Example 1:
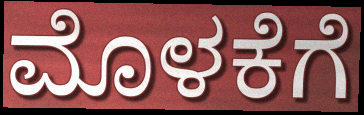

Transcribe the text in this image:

ಮೊಳಕೆಗೆ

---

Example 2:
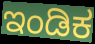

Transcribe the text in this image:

ಇಂಡಿಕ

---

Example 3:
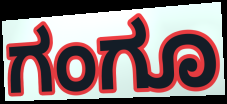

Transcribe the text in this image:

ಗಂಗೂ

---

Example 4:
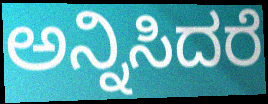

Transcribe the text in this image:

ಅನ್ನಿಸಿದರೆ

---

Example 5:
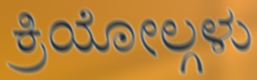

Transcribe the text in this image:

ಕ್ರಿಯೋಲ್ಗಳು